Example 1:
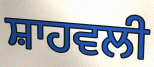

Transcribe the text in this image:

ਸ਼ਾਹਵਲੀ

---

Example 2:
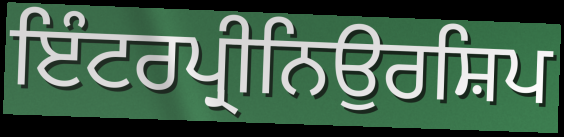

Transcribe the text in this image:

ਇੰਟਰਪ੍ਰੀਨਿਉਰਸ਼ਿਪ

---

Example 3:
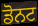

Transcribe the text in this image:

ਡੋਨਟ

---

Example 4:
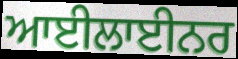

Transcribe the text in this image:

ਆਈਲਾਈਨਰ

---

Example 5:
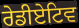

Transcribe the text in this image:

ਰੇਡੀਏਟਿਵ